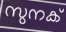
സുനക്